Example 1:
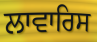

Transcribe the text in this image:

ਲਾਵਾਰਿਸ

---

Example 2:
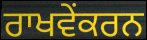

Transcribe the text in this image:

ਰਾਖਵੇਂਕਰਨ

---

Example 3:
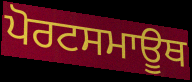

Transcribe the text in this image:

ਪੋਰਟਸਮਾਊਥ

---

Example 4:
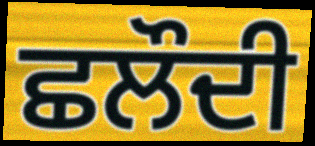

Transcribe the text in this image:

ਛਲੌਦੀ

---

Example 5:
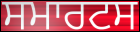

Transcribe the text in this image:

ਸਮਾਰਟਸ